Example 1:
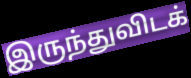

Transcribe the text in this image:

இருந்துவிடக்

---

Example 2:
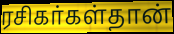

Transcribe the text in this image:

ரசிகர்கள்தான்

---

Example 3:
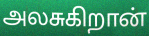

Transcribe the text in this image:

அலசுகிறான்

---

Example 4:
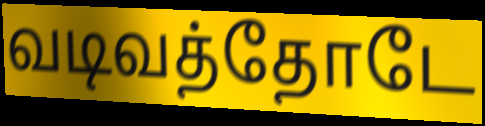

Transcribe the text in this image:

வடிவத்தோடே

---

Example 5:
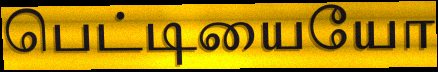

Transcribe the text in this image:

பெட்டியையோ